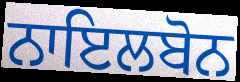
ਨਾਇਲਬੋਨ